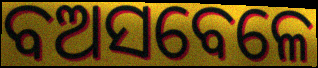
ବଅସବେଳେ